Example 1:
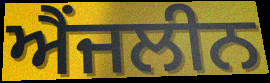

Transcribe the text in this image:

ਐਂਜਲੀਨ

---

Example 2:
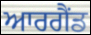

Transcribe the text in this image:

ਆਰਗੈਂਡ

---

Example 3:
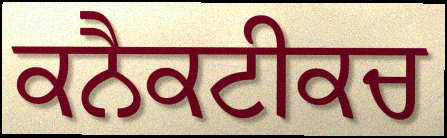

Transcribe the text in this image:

ਕਨੈਕਟੀਕਚ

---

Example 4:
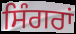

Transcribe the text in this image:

ਸਿੰਗਰਾਂ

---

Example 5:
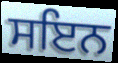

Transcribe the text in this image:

ਸਇਨ